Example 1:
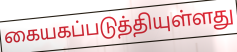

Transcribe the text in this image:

கையகப்படுத்தியுள்ளது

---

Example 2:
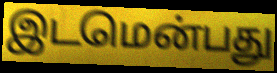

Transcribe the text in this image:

இடமென்பது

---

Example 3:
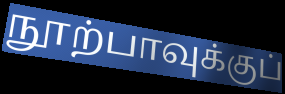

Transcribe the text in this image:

நூற்பாவுக்குப்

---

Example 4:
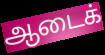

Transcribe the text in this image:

ஆடைக்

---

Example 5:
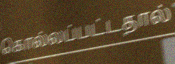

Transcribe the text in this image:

கொல்லப்பட்டதால்